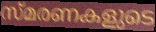
സ്മരണകളുടെ